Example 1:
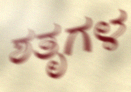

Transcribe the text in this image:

ಶತೃಗಳ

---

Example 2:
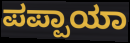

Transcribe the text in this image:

ಪಪ್ಪಾಯಾ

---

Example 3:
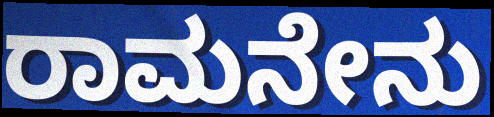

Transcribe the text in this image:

ರಾಮನೇನು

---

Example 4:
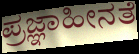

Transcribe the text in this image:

ಪ್ರಜ್ಞಾಹೀನತೆ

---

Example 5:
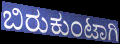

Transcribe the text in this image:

ಬಿರುಕುಂಟಾಗಿ